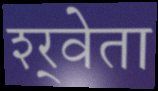
श्र्वेता